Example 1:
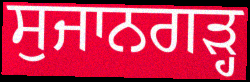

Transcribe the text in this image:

ਸੁਜਾਨਗੜ੍ਹ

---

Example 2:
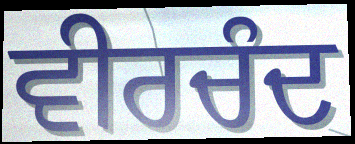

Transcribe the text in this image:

ਵੀਰਚੰਦ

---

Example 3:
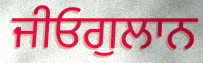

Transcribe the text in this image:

ਜੀਓਗੁਲਾਨ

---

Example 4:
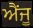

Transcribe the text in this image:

ਐਂਜੂ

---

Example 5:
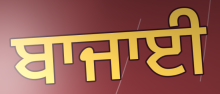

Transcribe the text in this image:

ਬਾਜਾਈ